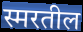
स्मरतील